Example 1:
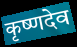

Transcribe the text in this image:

कृष्‍णदेव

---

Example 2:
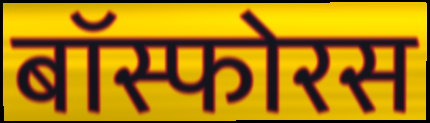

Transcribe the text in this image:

बॉस्फोरस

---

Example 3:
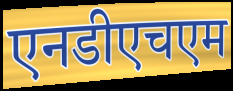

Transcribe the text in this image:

एनडीएचएम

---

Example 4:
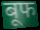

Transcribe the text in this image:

बूफ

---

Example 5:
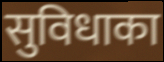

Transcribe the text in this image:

सुविधाका